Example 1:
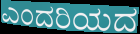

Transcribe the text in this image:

ಎಂದರಿಯದ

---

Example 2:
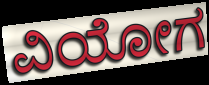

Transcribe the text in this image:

ವಿಯೋಗ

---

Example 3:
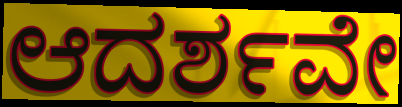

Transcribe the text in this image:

ಆದರ್ಶವೇ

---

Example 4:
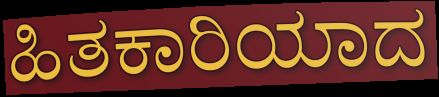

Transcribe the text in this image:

ಹಿತಕಾರಿಯಾದ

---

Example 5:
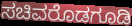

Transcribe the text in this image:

ಸಚಿವರೊಡಗೂಡಿ